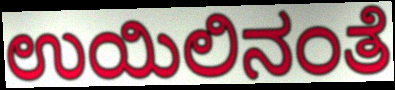
ಉಯಿಲಿನಂತೆ